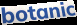
botanic